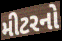
મીટરનો